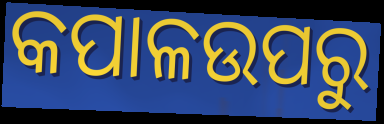
କପାଳଉପରୁ